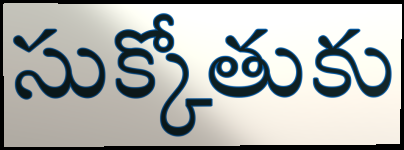
సుక్కోతుకు